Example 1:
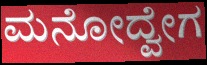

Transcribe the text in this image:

ಮನೋದ್ವೇಗ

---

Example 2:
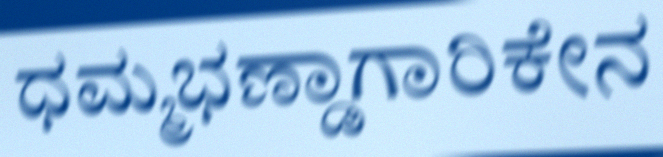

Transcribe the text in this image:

ಧಮ್ಮಭಣ್ಡಾಗಾರಿಕೇನ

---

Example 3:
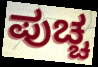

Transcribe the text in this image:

ಪುಚ್ಚ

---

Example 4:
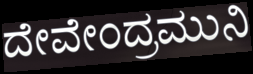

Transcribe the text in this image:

ದೇವೇಂದ್ರಮುನಿ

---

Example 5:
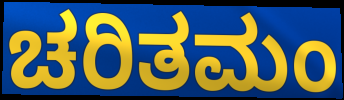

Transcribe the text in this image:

ಚರಿತಮಂ